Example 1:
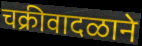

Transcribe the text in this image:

चक्रीवादळाने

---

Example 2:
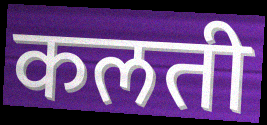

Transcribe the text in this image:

कलती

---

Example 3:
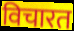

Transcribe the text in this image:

विचारत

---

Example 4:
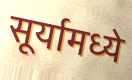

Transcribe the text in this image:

सूर्यामध्ये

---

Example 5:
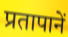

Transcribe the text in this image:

प्रतापानें